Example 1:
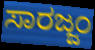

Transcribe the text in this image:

ಸಾರಜ್ಜಂ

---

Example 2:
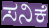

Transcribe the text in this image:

ಸನಿಕೆ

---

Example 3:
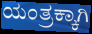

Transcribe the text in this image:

ಯಂತ್ರಕ್ಕಾಗಿ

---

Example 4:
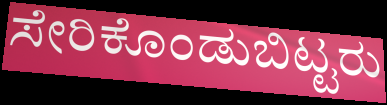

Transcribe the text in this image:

ಸೇರಿಕೊಂಡುಬಿಟ್ಟರು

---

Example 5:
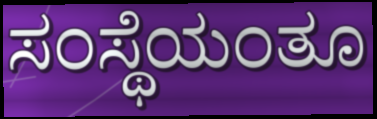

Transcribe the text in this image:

ಸಂಸ್ಥೆಯಂತೂ